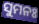
ସୁମନଃ